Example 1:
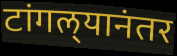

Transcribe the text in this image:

टांगल्यानंतर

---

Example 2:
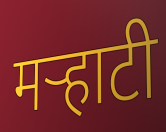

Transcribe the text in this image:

मर्‍हाटी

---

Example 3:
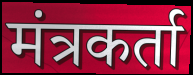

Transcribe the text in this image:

मंत्रकर्ता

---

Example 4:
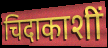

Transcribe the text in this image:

चिदाकाशीं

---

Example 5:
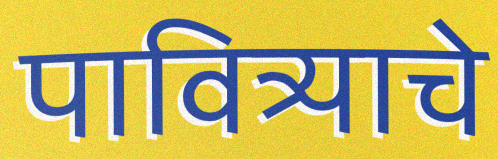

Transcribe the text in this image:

पावित्र्याचे